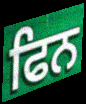
ਫਿਨ